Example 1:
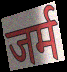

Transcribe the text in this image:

जर्म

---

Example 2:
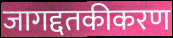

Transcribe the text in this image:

जागद्दतकीकरण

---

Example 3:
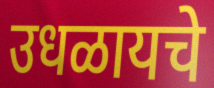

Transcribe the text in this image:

उधळायचे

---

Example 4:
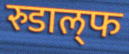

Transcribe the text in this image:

रुडाल्फ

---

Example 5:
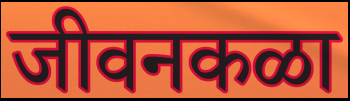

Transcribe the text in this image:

जीवनकळा